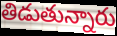
తిడుతున్నారు